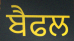
ਬੈਫਲ